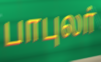
பாபுலர்